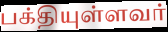
பக்தியுள்ளவர்